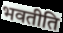
भवतीति